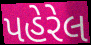
પહેરેલ